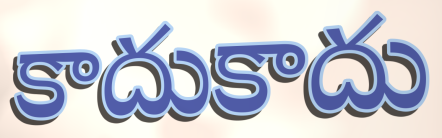
కాదుకాదు